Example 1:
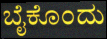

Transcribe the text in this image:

ಬೈಕೊಂದು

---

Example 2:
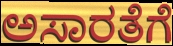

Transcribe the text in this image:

ಅಸಾರತೆಗೆ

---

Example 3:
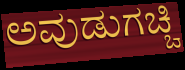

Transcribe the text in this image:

ಅವುಡುಗಚ್ಚಿ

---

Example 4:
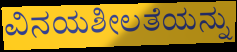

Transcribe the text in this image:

ವಿನಯಶೀಲತೆಯನ್ನು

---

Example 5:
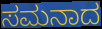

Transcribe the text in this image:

ಸಮನಾದ